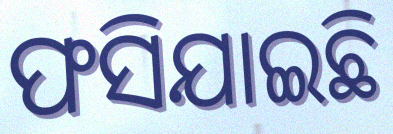
ଫସିଯାଇଛି